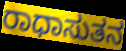
ರಾಧಾಸುತನ